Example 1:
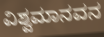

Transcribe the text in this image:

ವಿಶ್ವಮಾನವನ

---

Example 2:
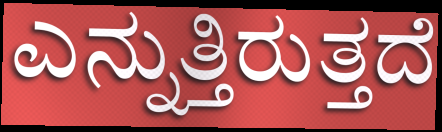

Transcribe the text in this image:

ಎನ್ನುತ್ತಿರುತ್ತದೆ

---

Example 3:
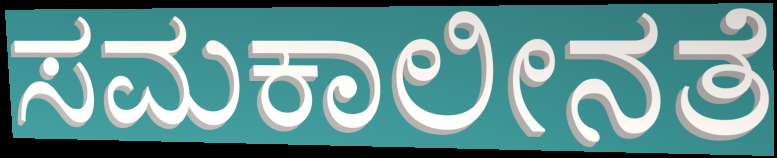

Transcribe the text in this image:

ಸಮಕಾಲೀನತೆ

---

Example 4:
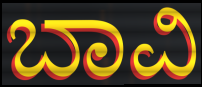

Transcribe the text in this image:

ಬಾವಿ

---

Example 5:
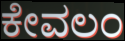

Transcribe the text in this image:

ಕೇವಲಂ